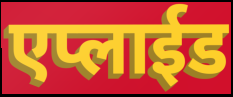
एप्लाईड